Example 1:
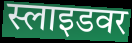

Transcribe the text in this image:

स्‍लाइडवर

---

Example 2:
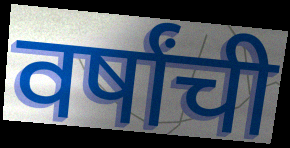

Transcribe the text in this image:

वर्षांची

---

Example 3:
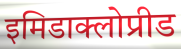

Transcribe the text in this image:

इमिडाक्लोप्रीड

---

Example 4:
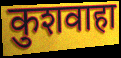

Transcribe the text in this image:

कुशवाहा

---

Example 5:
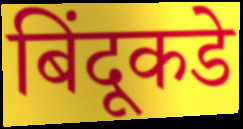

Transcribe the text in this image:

बिंदूकडे